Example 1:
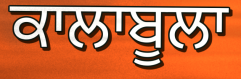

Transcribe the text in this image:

ਕਾਲਾਬੂਲਾ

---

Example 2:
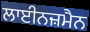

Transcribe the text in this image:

ਲਾਈਨਜ਼ਮੈਨ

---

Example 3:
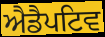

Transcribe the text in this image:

ਐਡੈਪਟਿਵ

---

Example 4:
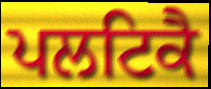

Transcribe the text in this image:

ਪਲਟਿਕੈ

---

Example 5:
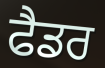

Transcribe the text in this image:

ਫੈਡਰ